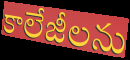
కాలేజీలను